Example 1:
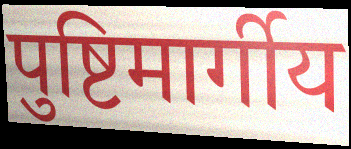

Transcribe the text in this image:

पुष्टिमार्गीय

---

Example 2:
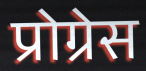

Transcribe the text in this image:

प्रोग्रेस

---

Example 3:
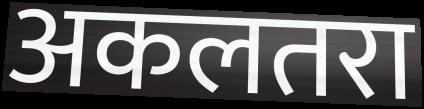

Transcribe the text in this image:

अकलतरा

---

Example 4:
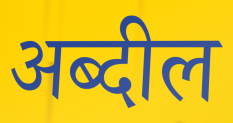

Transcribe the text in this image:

अब्दील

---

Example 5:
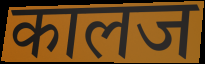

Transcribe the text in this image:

कालज